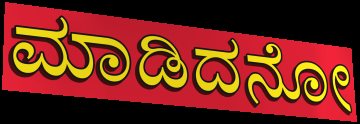
ಮಾಡಿದನೋ